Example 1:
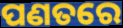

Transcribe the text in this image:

ପଣତରେ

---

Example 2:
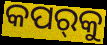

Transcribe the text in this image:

କପର୍‌କୁ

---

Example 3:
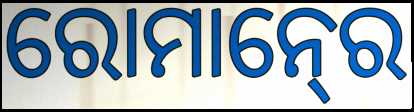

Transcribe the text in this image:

ରୋମାନ୍‍ରେ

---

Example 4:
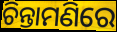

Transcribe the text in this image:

ଚିନ୍ତାମଣିରେ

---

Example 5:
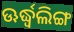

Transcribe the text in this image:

ଊର୍ଦ୍ଧ୍ୱଲିଙ୍ଗ